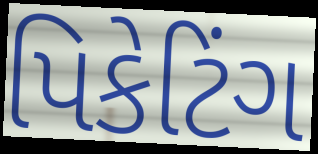
પિકેટિંગ